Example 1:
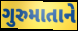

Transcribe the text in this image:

ગુરુમાતાને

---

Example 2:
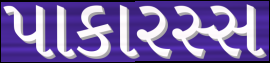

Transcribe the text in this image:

પાકારસ્સ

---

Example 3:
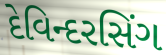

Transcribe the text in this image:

દેવિન્દરસિંગ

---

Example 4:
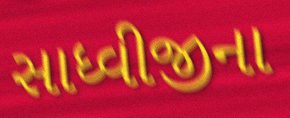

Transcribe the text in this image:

સાધ્વીજીના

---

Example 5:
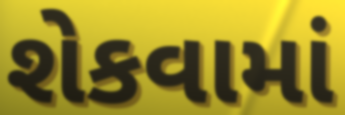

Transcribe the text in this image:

શેકવામાં